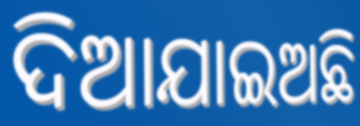
ଦିଆଯାଇଅଛି